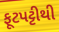
ફૂટપટ્ટીથી